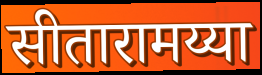
सीतारामय्या